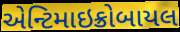
એન્ટિમાઇક્રોબાયલ